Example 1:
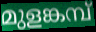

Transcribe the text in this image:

മുളങ്കമ്പ്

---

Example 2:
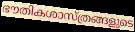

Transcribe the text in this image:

ഭൗതികശാസ്ത്രങ്ങളുടെ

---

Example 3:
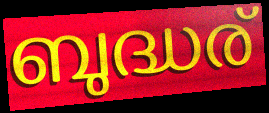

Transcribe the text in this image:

ബുദ്ധര്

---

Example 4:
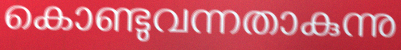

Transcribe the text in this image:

കൊണ്ടുവന്നതാകുന്നു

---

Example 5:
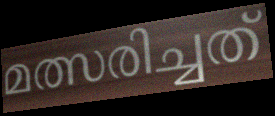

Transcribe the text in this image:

മത്സരിച്ചത്